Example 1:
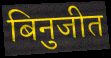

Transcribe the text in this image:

बिनुजीत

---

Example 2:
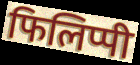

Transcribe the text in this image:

फिलिप्पी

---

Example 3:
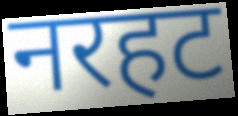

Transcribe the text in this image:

नरहट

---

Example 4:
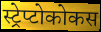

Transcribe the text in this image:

स्ट्रेप्टोकोकस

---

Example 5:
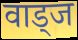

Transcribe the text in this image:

वाड्ज